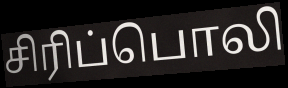
சிரிப்பொலி